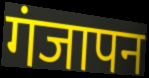
गंजापन